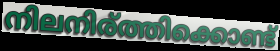
നിലനിര്ത്തിക്കൊണ്ട്